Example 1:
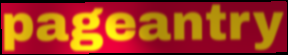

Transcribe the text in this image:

pageantry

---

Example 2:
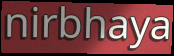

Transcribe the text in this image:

nirbhaya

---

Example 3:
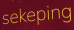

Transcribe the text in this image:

sekeping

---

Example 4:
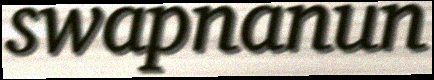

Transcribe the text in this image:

swapnanun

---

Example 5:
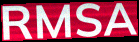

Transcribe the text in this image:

RMSA